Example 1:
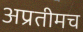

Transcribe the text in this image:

अप्रतीमच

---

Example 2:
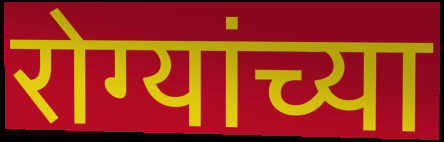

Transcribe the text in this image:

रोग्यांच्या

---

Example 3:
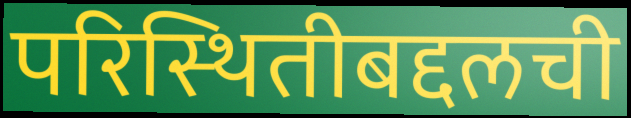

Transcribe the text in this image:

परिस्थितीबद्दलची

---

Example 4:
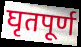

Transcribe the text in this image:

घृतपूर्ण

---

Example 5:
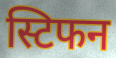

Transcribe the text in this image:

स्टिफन